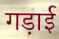
गड़ाई